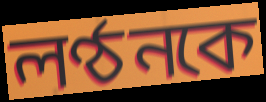
লণ্ঠনকে